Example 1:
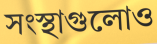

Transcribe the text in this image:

সংস্থাগুলোও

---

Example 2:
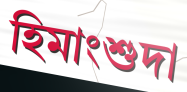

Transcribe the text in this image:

হিমাংশুদা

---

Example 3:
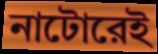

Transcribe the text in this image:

নাটোরেই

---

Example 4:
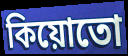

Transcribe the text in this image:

কিয়োতো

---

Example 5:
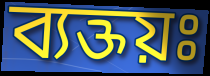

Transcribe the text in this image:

ব্যক্তয়ঃ